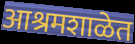
आश्रमशाळेत